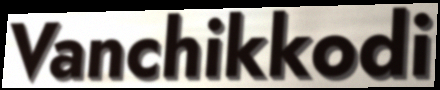
Vanchikkodi